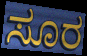
ಸೂರ